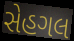
સેહગલ